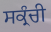
ਸਕ੍ਰੰਚੀ